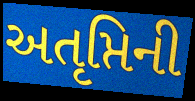
અતૃપ્તિની